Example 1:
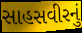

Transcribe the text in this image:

સાહસવીરનું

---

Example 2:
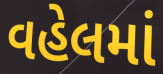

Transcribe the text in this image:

વહેલમાં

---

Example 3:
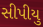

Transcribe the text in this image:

સીપીયુ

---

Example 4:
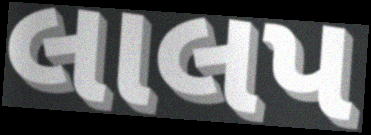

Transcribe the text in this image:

લાલપ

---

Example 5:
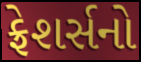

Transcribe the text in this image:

ફ્રેશર્સનો